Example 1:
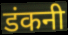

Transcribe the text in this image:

डंकनी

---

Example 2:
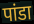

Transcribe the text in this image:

पांडा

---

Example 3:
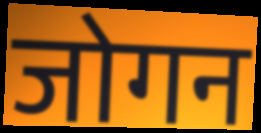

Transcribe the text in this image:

जोगन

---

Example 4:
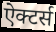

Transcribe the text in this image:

ऐक्टर्स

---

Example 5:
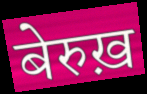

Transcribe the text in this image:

बेरुख़